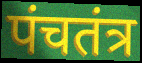
पंचतंत्र